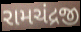
રામચંદ્રજી